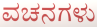
ವಚನಗಳು